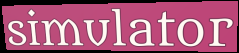
simulator